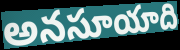
అనసూయాది